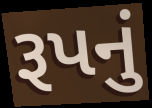
રૂપનું